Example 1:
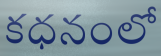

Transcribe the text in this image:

కధనంలో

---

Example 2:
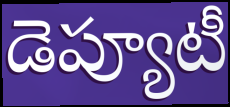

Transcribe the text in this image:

డెప్యూటీ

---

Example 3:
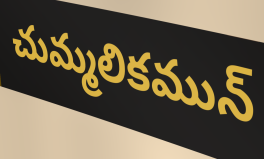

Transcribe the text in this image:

చుమ్మలికమున్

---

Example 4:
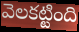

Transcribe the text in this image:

వెలకట్టింది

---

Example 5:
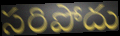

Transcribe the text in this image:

సరిపోదు